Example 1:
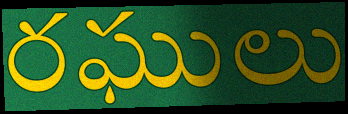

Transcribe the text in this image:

రఘులు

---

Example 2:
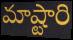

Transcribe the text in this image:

మాష్టారి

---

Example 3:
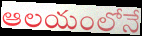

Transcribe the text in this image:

ఆలయంలోనే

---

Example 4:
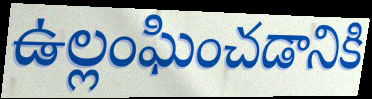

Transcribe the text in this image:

ఉల్లంఘించడానికి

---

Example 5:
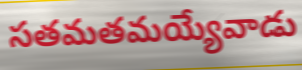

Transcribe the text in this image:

సతమతమయ్యేవాడు